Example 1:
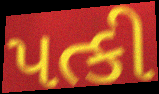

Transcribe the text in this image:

પત્કી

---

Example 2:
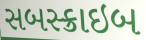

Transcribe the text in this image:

સબસ્ક્રાઇબ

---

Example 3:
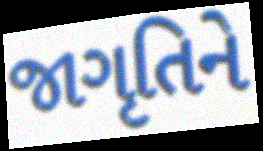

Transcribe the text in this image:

જાગૃતિને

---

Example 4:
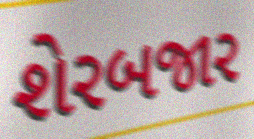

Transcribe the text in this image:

શેરબજાર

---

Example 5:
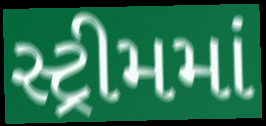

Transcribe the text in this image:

સ્ટ્રીમમાં